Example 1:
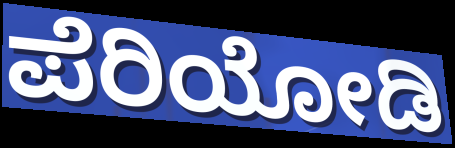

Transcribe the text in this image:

ಪೆರಿಯೋಡಿ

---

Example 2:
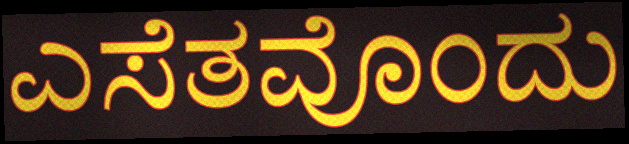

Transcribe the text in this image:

ಎಸೆತವೊಂದು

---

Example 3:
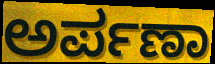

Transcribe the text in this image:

ಅರ್ಪಣಾ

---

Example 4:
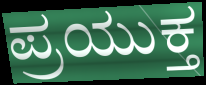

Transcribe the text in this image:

ಪ್ರಯುಕ್ತ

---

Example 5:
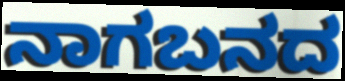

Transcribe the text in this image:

ನಾಗಬನದ